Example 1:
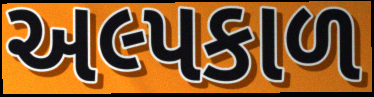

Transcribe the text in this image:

અલ્પકાળ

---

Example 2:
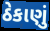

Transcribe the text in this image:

ઠેકાણું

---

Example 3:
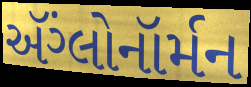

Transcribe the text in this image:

ઍંગ્લોનૉર્મન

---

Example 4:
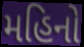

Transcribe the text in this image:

મહિનો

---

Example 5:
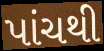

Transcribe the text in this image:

પાંચથી